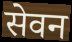
सेवन